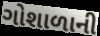
ગોશાળાની